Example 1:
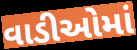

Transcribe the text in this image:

વાડીઓમાં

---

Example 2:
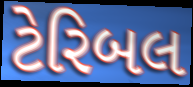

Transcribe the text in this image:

ટેરિબલ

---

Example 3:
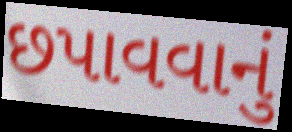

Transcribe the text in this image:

છપાવવાનું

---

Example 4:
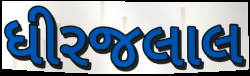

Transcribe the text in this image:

ધીરજલાલ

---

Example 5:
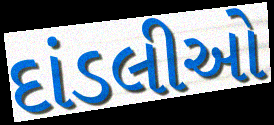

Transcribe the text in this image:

દાંડલીઓ